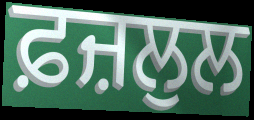
ਫ਼ਜ਼ਲੁਲ